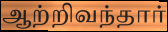
ஆற்றிவந்தார்